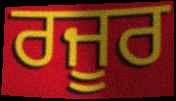
ਰਜੂਰ